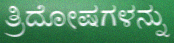
ತ್ರಿದೋಷಗಳನ್ನು